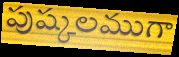
పుష్కలముగా